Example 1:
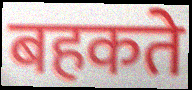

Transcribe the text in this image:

बहकते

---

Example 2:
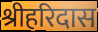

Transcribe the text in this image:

श्रीहरिदास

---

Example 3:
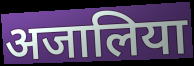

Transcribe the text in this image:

अजालिया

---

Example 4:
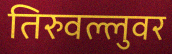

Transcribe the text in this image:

तिरुवल्लुवर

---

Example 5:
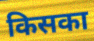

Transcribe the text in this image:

किसका